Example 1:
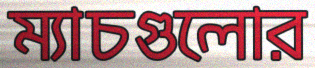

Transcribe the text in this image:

ম্যাচগুলোর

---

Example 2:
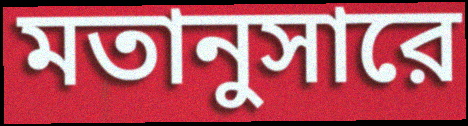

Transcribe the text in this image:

মতানুসারে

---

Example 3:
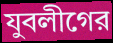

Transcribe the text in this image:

যুবলীগের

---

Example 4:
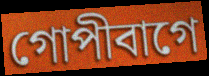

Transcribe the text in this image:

গোপীবাগে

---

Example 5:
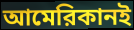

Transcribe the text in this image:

আমেরিকানই